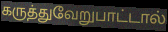
கருத்துவேறுபாட்டால்